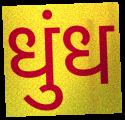
धुंध